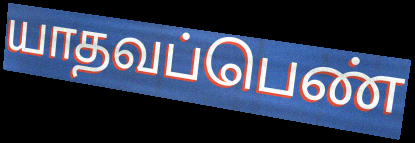
யாதவப்பெண்